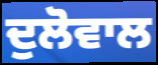
ਦੁਲੋਵਾਲ